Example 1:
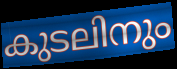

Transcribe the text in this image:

കുടലിനും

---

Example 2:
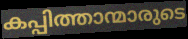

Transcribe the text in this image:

കപ്പിത്താന്മാരുടെ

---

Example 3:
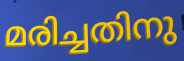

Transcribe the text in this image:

മരിച്ചതിനു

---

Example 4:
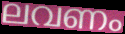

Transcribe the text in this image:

ലവണം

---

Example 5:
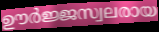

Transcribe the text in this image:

ഊർജ്ജസ്വലരായ